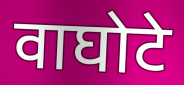
वाघोटे